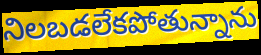
నిలబడలేకపోతున్నాను